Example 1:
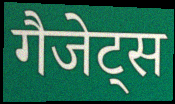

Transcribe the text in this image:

गैजेट्स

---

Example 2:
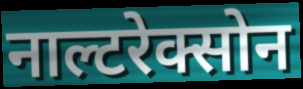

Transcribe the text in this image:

नाल्टरेक्सोन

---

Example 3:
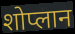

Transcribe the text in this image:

शोप्लान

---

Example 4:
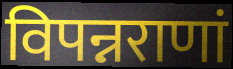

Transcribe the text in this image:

विपन्नराणां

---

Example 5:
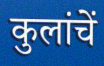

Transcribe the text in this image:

कुलांचें